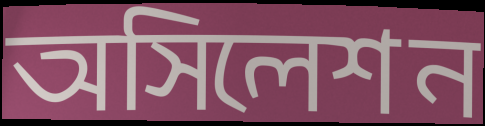
অসিলেশন